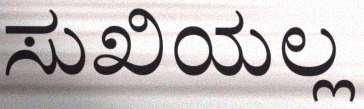
ಸುಖಿಯಲ್ಲ